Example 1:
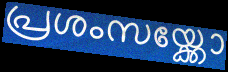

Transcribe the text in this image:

പ്രശംസയ്ക്കോ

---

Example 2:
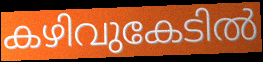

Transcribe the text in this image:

കഴിവുകേടിൽ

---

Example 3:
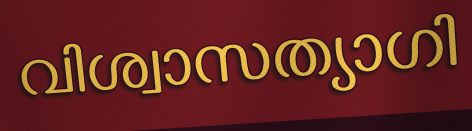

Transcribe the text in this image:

വിശ്വാസത്യാഗി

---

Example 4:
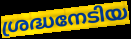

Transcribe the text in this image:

ശ്രദ്ധനേടിയ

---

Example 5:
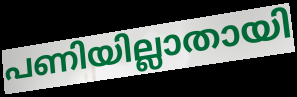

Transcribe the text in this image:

പണിയില്ലാതായി